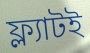
ফ্ল্যাটই